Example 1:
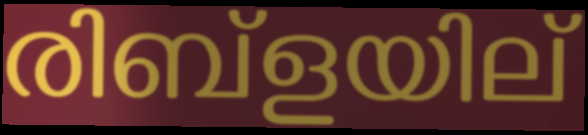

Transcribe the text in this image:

രിബ്ളയില്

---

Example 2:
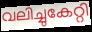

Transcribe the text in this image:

വലിച്ചുകേറ്റി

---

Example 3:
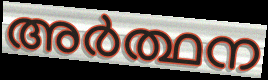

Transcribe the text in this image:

അർത്ഥന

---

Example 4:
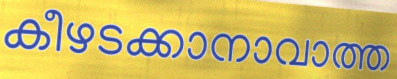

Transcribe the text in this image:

കീഴടക്കാനാവാത്ത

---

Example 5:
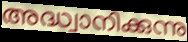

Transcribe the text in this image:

അദ്ധ്വാനിക്കുന്നു